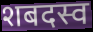
शबदस्व